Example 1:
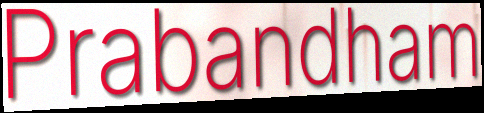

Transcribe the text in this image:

Prabandham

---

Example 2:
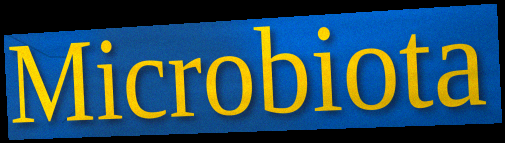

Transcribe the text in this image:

Microbiota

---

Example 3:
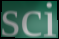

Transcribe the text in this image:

sci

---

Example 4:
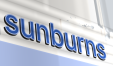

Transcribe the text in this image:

sunburns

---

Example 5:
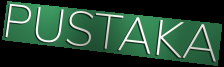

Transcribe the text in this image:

PUSTAKA